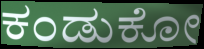
ಕಂಡುಕೋ